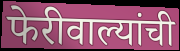
फेरीवाल्यांची